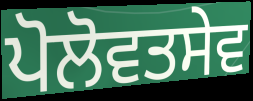
ਪੋਲੋਵਤਸੇਵ